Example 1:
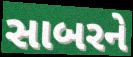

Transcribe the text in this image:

સાબરને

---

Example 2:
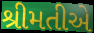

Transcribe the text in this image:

શ્રીમતીએ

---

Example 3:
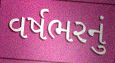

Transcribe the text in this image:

વર્ષભરનું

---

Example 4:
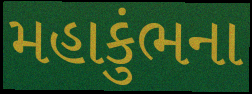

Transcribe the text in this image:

મહાકુંભના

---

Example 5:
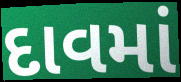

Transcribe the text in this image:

દાવમાં